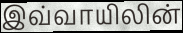
இவ்வாயிலின்